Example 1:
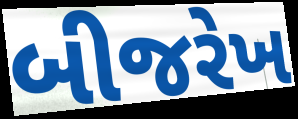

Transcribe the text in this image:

બીજરેખ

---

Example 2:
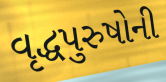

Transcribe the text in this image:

વૃદ્ધપુરુષોની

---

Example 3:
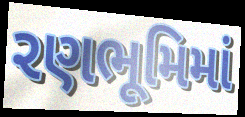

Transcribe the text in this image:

રણભૂમિમાં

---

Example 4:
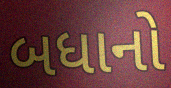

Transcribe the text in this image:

બધાનો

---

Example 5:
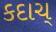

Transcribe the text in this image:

કદાચ્